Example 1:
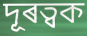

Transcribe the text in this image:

দূৰত্বক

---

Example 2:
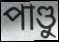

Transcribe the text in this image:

পাণ্ডু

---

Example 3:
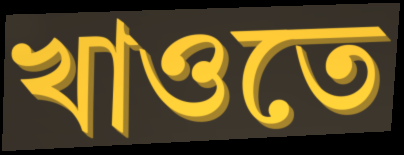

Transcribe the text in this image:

খাওতে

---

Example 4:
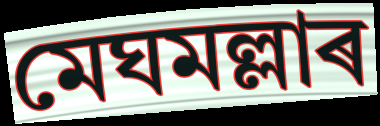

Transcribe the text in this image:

মেঘমল্লাৰ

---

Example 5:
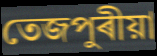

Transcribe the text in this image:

তেজপুৰীয়া